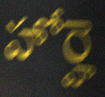
హోర్హె